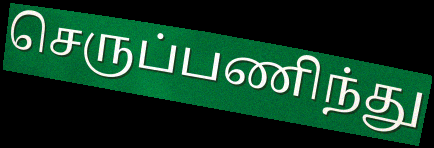
செருப்பணிந்து